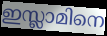
ഇസ്ലാമിനെ